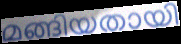
മങ്ങിയതായി